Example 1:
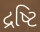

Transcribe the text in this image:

દ્રષ્ટિ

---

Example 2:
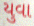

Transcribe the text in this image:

યુવા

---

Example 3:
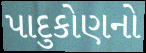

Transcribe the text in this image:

પાદુકોણનો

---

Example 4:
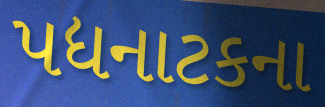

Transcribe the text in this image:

પદ્યનાટકના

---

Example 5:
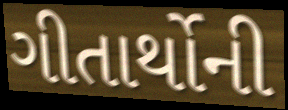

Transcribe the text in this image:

ગીતાર્થોની